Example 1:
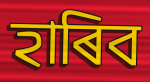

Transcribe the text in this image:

হাৰিব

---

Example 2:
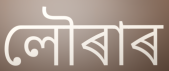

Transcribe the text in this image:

লৌৰাৰ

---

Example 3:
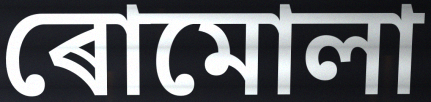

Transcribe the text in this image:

ৰোমোলা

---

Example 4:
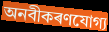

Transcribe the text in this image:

অনবীকৰণযোগ্য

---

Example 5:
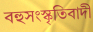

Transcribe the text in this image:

বহুসংস্কৃতিবাদী